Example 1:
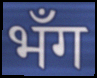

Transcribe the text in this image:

भँग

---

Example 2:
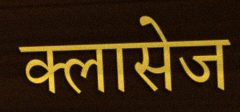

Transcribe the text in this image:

क्लासेज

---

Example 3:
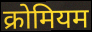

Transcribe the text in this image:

क्रोमियम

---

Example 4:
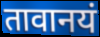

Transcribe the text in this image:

तावानयं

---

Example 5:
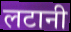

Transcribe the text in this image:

लटानी